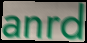
anrd